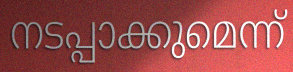
നടപ്പാക്കുമെന്ന്